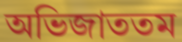
অভিজাততম